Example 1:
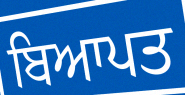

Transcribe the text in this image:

ਬਿਆਪਤ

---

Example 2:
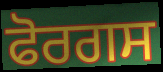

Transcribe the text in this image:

ਫੋਰਗਸ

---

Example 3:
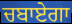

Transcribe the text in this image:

ਚਬਾਏਗਾ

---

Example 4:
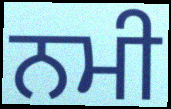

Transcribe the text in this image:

ਨਮੀ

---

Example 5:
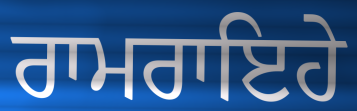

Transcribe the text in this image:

ਰਾਮਰਾਇਹੇ